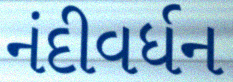
નંદીવર્ધન